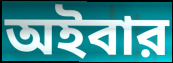
অইবার